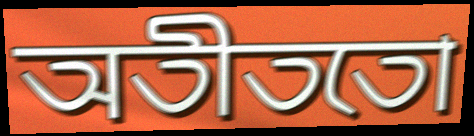
অতীততো